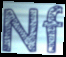
Nf